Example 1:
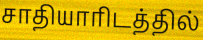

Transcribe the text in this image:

சாதியாரிடத்தில்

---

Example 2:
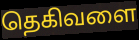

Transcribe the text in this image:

தெகிவளை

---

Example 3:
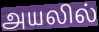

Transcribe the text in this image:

அயலில்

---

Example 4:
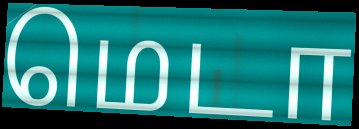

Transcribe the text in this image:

மெடா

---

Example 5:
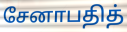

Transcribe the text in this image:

சேனாபதித்